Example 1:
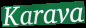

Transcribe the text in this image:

Karava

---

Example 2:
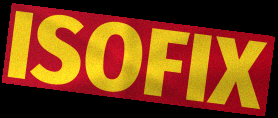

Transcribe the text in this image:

ISOFIX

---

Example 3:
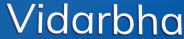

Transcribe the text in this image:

Vidarbha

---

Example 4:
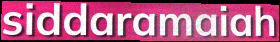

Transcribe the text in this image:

siddaramaiah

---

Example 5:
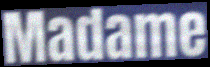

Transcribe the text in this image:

Madame